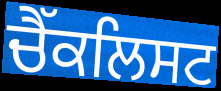
ਚੈੱਕਲਿਸਟ